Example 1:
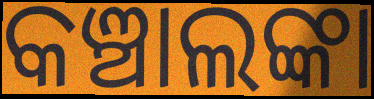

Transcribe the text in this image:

କଞ୍ଚାଲଙ୍କା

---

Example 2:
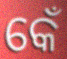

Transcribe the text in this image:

କେଁ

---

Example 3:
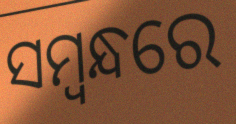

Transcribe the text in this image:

ସମ୍ବନ୍ଧରେ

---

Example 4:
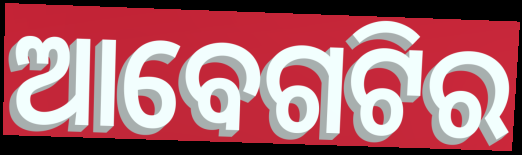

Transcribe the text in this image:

ଆବେଗଟିର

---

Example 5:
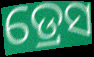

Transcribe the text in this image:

ଡ୍ରେସ